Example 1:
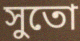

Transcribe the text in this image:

সুতো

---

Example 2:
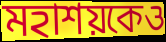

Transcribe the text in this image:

মহাশয়কেও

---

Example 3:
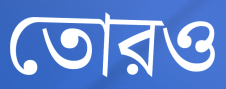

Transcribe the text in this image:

তোরও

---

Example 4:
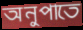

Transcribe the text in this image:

অনুপাতে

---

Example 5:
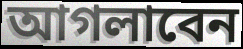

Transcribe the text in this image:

আগলাবেন